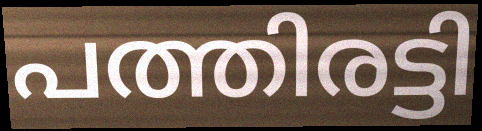
പത്തിരട്ടി